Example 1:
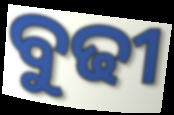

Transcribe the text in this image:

ବୁଢୀ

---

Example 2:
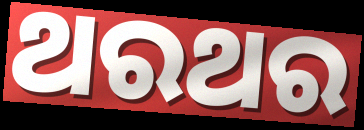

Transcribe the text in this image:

ଥରଥର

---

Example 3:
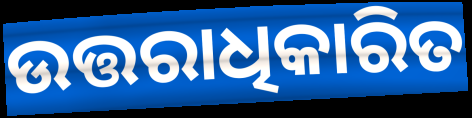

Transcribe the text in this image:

ଉତ୍ତରାଧିକାରିତ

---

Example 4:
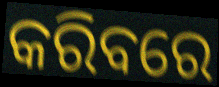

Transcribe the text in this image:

କରିବରେ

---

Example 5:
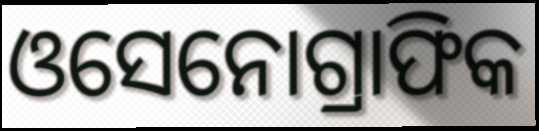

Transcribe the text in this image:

ଓସେନୋଗ୍ରାଫିକ